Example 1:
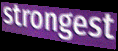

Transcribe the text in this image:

strongest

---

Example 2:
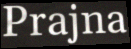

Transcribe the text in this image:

Prajna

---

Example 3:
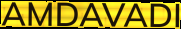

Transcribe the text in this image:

AMDAVADI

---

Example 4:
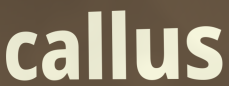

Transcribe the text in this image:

callus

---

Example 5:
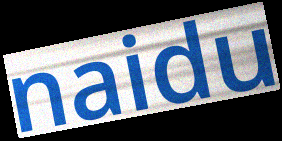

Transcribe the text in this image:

naidu